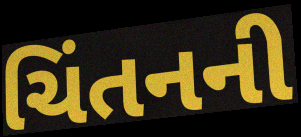
ચિંતનની